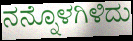
ನನ್ನೊಳಗಿಳಿದು